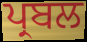
ਪ੍ਰਬਲ